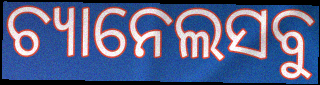
ଚ୍ୟାନେଲସବୁ